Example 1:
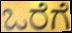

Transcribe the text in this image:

ಒರೆಗೆ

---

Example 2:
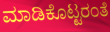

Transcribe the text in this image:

ಮಾಡಿಕೊಟ್ಟರಂತೆ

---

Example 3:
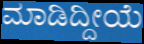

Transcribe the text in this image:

ಮಾಡಿದ್ದೀಯೆ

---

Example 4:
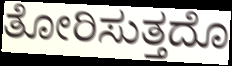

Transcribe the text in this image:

ತೋರಿಸುತ್ತದೊ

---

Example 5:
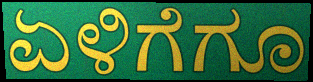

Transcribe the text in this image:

ಏಳಿಗೆಗೂ